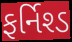
ફર્નિશ્ડ